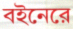
বইনেরে